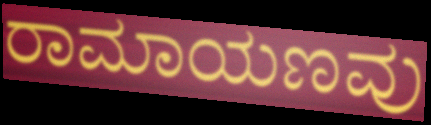
ರಾಮಾಯಣವು